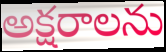
అక్షరాలను